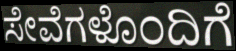
ಸೇವೆಗಳೊಂದಿಗೆ